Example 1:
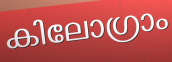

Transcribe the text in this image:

കിലോഗ്രാം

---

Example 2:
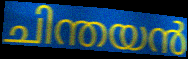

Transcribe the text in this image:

ചിന്തയൻ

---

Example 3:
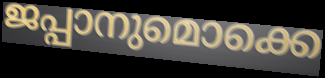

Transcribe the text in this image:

ജപ്പാനുമൊക്കെ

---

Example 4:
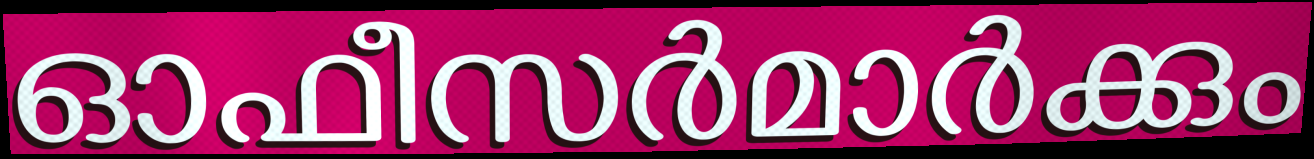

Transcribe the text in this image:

ഓഫീസർമാർക്കും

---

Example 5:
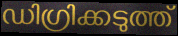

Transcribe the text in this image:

ഡിഗ്രിക്കടുത്ത്